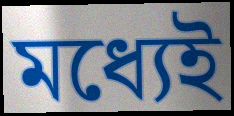
মধ্যেই